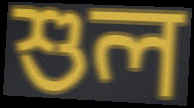
শুল